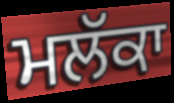
ਮਲੱਕਾ